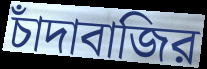
চাঁদাবাজির